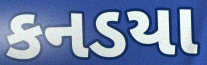
કનડયા